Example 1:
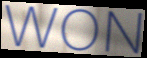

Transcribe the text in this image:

WON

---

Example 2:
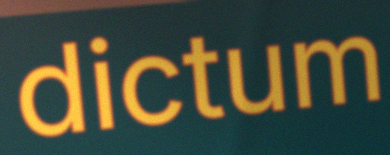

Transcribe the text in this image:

dictum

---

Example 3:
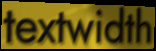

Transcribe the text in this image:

textwidth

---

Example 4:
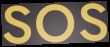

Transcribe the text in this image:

sos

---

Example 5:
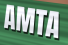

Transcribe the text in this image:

AMTA